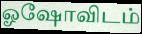
ஓஷோவிடம்